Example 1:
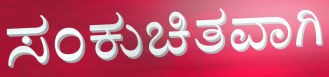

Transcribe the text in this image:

ಸಂಕುಚಿತವಾಗಿ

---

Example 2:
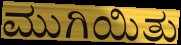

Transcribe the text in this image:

ಮುಗಿಯಿತು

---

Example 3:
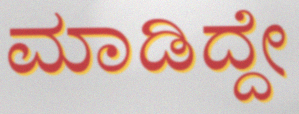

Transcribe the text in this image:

ಮಾಡಿದ್ದೇ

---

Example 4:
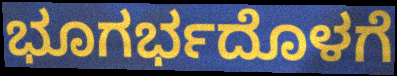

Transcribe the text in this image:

ಭೂಗರ್ಭದೊಳಗೆ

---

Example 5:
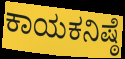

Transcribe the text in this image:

ಕಾಯಕನಿಷ್ಠೆ